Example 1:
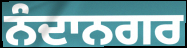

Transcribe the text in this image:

ਨੰਦਾਨਗਰ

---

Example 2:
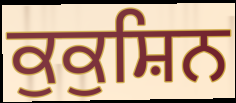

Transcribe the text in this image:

ਕੁਕੁਸ਼ਿਨ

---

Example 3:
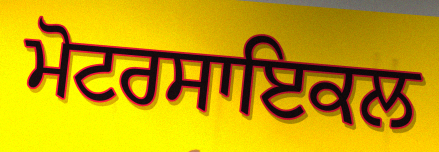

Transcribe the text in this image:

ਮੋਟਰਸਾਇਕਲ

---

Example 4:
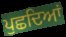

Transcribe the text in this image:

ਪੁਛਦਿਆਂ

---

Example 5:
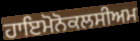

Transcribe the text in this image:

ਹਾਇਮੋਨੋਕਲਸੀਅਮ